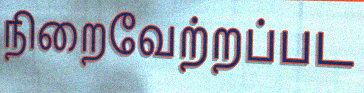
நிறைவேற்றப்பட